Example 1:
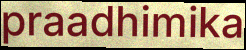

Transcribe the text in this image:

praadhimika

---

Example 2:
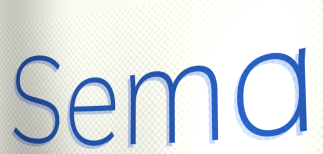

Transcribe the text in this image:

Sema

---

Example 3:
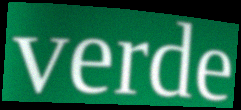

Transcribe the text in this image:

verde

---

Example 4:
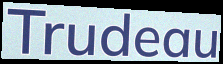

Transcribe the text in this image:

Trudeau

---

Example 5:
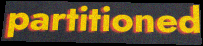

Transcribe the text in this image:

partitioned